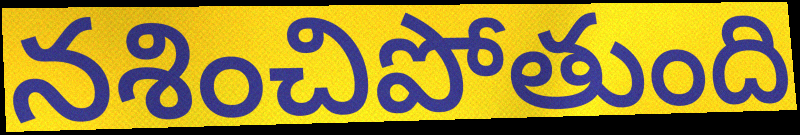
నశించిపోతుంది